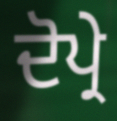
ਦੋਪ੍ਰੇ